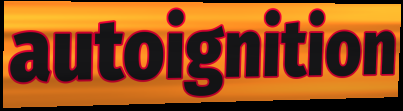
autoignition